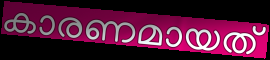
കാരണമായത്